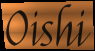
Oishi